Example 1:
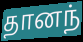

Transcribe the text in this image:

தானந்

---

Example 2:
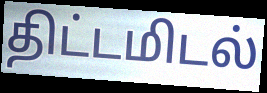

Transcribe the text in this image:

திட்டமிடல்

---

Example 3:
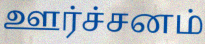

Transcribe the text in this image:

ஊர்ச்சனம்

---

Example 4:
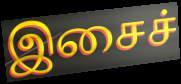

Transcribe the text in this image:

இசைச்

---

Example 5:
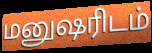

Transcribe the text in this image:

மனுஷரிடம்